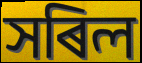
সৰিল